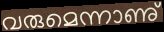
വരുമെന്നാണു്